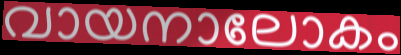
വായനാലോകം